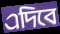
এদিবে